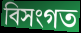
বিসংগত